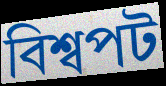
বিশ্বপট